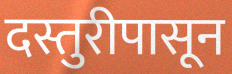
दस्तुरीपासून